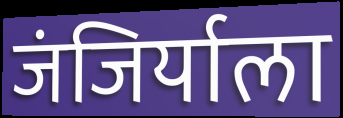
जंजिर्याला